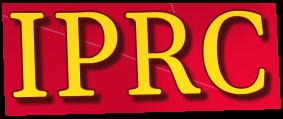
IPRC